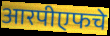
आरपीएफचे